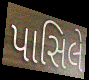
પાસિલે